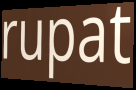
rupat